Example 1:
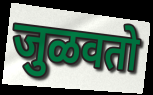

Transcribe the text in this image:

जुळवतो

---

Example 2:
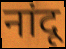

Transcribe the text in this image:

नांदू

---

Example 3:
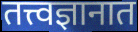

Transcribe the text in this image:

तत्त्वज्ञानात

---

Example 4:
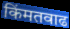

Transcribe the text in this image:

किंमतवाढ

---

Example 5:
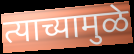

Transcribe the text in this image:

त्याच्यामुळे